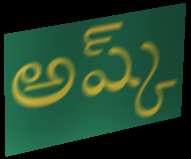
అష్క్